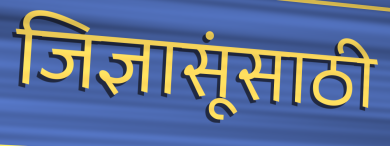
जिज्ञासूंसाठी